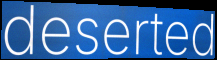
deserted